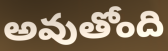
అవుతోంది